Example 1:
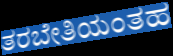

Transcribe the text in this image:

ತರಬೇತಿಯಂತಹ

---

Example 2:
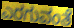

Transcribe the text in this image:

ಎರಗುವಂತೆ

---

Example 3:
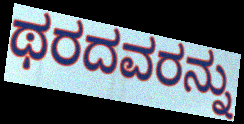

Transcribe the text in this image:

ಥರದವರನ್ನು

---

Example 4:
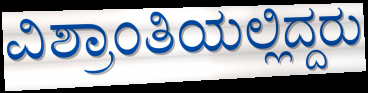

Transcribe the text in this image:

ವಿಶ್ರಾಂತಿಯಲ್ಲಿದ್ದರು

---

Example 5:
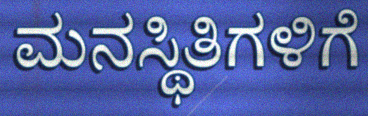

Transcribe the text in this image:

ಮನಸ್ಥಿತಿಗಳಿಗೆ